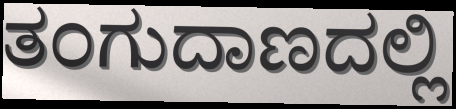
ತಂಗುದಾಣದಲ್ಲಿ